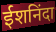
ईशनिंदा